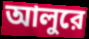
আলুরে